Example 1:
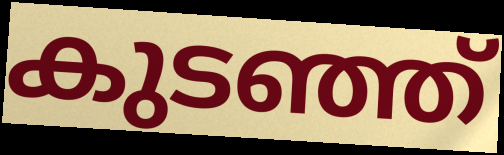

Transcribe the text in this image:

കുടഞ്ഞ്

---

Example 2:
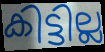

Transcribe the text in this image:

കിട്ടില്ല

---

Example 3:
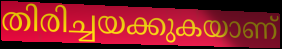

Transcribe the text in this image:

തിരിച്ചയക്കുകയാണ്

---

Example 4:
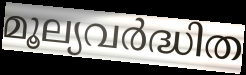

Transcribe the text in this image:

മൂല്യവർദ്ധിത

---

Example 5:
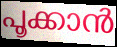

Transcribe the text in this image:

പൂക്കാൻ